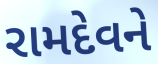
રામદેવને